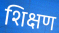
शिक्षण